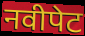
नवीपेट